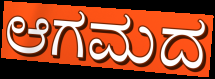
ಆಗಮದ